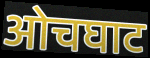
ओचघाट